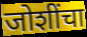
जोशींचा